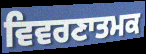
ਵਿਵਰਣਾਤਮਕ